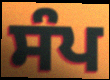
ਸੰਪ